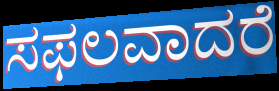
ಸಫಲವಾದರೆ